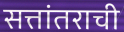
सत्तांतराची